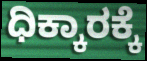
ಧಿಕ್ಕಾರಕ್ಕೆ